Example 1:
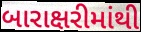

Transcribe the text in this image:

બારાક્ષરીમાંથી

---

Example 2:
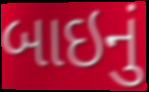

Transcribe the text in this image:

બાઇનું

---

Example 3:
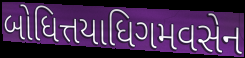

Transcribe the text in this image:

બોધિત્તયાધિગમવસેન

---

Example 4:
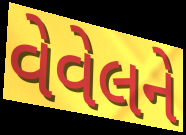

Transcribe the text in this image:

વેવેલને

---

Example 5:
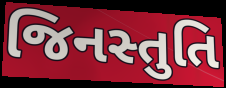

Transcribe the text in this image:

જિનસ્તુતિ